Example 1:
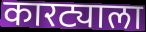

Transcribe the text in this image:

कारट्याला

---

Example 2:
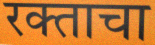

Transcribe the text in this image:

रक्‍ताचा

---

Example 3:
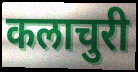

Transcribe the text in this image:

कलाचुरी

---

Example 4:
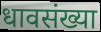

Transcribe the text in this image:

धावसंख्या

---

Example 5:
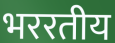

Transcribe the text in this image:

भररतीय